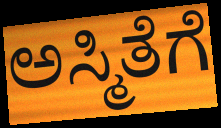
ಅಸ್ಮಿತೆಗೆ